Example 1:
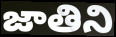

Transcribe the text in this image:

జాతిని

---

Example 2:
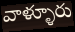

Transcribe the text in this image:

వాళ్ళూరు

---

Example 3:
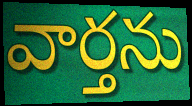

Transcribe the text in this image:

వార్తను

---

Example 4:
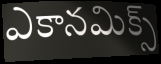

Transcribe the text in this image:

ఎకానమిక్స్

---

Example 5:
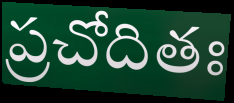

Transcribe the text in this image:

ప్రచోదితః